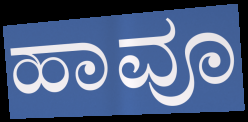
ಹಾವೂ